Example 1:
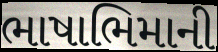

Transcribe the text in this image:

ભાષાભિમાની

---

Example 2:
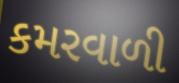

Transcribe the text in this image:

કમરવાળી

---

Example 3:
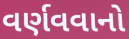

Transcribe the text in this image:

વર્ણવવાનો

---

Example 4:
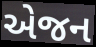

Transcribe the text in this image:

એજન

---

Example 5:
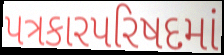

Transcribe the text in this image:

પત્રકારપરિષદમાં